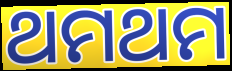
ଥମଥମ